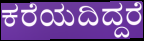
ಕರೆಯದಿದ್ದರೆ